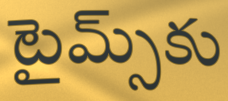
టైమ్స్‌కు